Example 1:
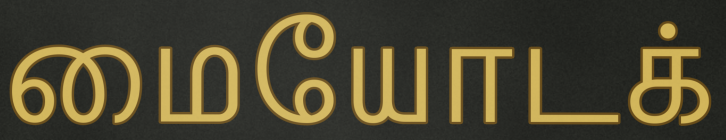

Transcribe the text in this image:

மையோடக்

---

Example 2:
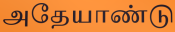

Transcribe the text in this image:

அதேயாண்டு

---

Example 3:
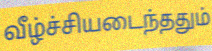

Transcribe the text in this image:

வீழ்ச்சியடைந்ததும்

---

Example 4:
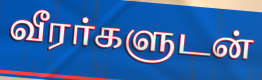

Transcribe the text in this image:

வீரர்களுடன்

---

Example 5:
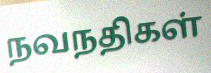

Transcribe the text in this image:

நவநதிகள்